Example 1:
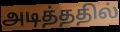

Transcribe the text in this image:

அடித்ததில்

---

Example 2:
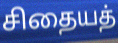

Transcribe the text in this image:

சிதையத்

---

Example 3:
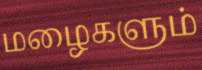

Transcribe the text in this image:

மழைகளும்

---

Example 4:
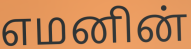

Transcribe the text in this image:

எமனின்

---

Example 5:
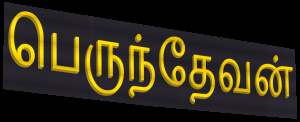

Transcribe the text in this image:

பெருந்தேவன்